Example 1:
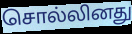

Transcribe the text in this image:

சொல்லினது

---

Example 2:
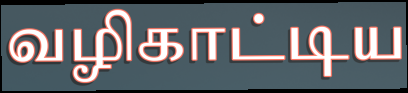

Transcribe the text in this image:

வழிகாட்டிய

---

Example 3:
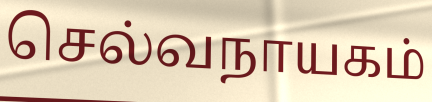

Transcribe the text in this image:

செல்வநாயகம்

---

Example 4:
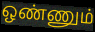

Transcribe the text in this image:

ஒண்ணும்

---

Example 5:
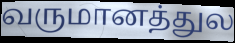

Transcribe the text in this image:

வருமானத்துல